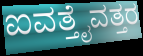
ಐವತ್ತೈವತ್ತರ